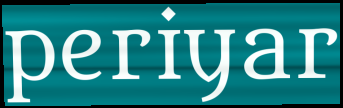
periyar